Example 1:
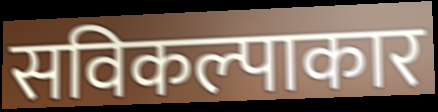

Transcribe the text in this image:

सविकल्पाकार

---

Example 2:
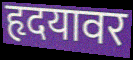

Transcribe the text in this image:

हृदयावर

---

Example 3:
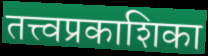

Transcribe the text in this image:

तत्त्वप्रकाशिका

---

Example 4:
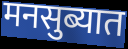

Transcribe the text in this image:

मनसुब्यात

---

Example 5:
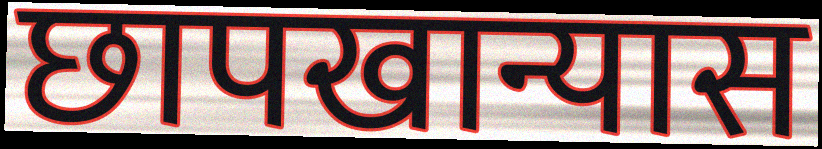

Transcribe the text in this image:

छापखान्यास